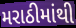
મરાઠીમાંથી